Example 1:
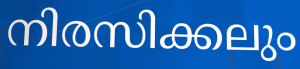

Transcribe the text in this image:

നിരസിക്കലും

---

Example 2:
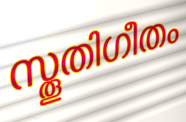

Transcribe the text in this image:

സ്തൂതിഗീതം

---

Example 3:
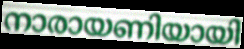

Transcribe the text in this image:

നാരായണിയായി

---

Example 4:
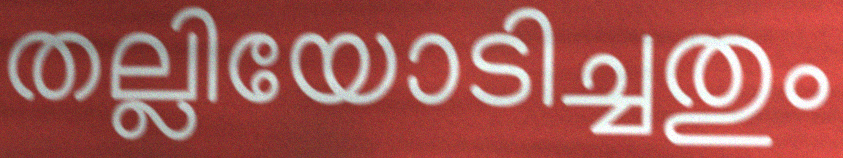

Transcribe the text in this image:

തല്ലിയോടിച്ചതും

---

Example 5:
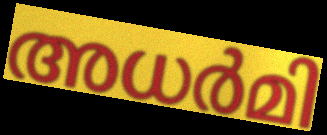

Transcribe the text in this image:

അധർമി